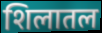
शिलातल